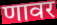
णावर